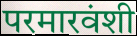
परमारवंशी